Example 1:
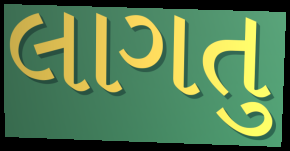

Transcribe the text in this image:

લાગતુ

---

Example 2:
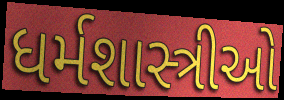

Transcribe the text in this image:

ધર્મશાસ્ત્રીઓ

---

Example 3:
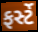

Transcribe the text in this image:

ફર્સ્ટે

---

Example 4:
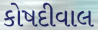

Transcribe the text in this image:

કોષદીવાલ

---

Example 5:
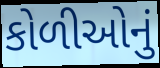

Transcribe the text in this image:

કોળીઓનું